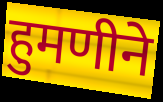
हुमणीने